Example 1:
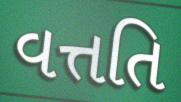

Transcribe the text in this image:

વત્તતિ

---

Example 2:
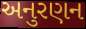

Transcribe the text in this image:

અનુરણન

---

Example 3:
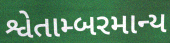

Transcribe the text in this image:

શ્વેતામ્બરમાન્ય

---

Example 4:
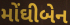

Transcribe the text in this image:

મોંઘીબેન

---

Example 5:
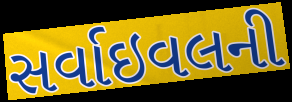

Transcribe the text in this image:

સર્વાઇવલની